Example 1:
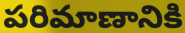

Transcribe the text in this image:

పరిమాణానికి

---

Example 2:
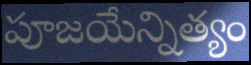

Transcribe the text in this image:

పూజయేన్నిత్యం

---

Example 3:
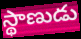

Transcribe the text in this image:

స్థాణుడు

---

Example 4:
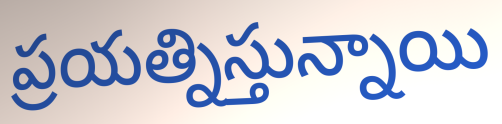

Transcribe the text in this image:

ప్రయత్నిస్తున్నాయి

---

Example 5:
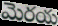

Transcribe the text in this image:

మెరయ